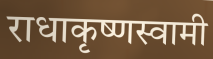
राधाकृष्णस्वामी